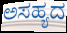
ಅಸಹ್ಯದ